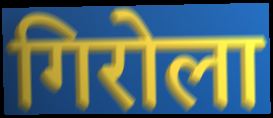
गिरोला